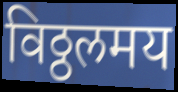
विठ्ठलमय